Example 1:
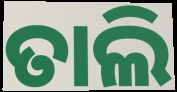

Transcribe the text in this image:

ତାଲି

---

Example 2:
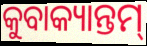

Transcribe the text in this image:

କୁବାକ୍ୟାନ୍ତମ୍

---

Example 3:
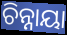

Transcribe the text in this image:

ଚିନ୍ନାୟା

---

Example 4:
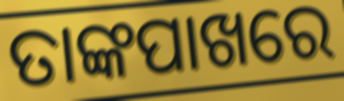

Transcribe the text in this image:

ତାଙ୍କପାଖରେ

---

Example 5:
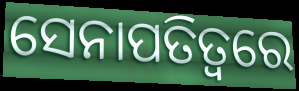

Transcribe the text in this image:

ସେନାପତିତ୍ୱରେ